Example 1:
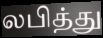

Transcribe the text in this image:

லபித்து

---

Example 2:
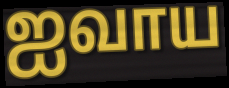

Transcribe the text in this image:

ஐவாய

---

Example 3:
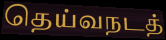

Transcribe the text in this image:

தெய்வநடத்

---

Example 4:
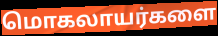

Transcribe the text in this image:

மொகலாயர்களை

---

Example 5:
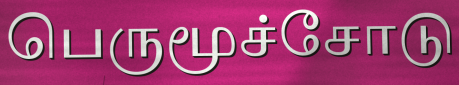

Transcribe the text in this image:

பெருமூச்சோடு